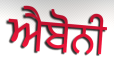
ਐਬੋਨੀ